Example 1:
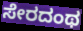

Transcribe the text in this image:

ಸೇರದಂಥ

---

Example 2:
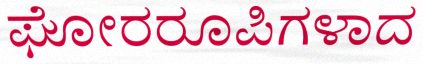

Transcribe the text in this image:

ಘೋರರೂಪಿಗಳಾದ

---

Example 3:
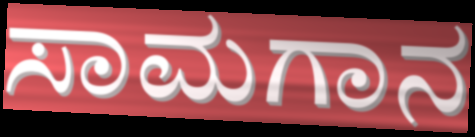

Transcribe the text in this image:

ಸಾಮಗಾನ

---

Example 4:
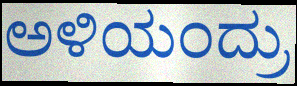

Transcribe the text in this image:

ಅಳಿಯಂದ್ರು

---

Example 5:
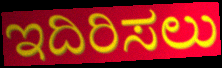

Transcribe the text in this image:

ಇದಿರಿಸಲು